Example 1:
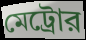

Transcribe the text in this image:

মেট্রোর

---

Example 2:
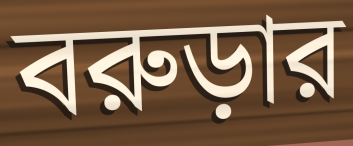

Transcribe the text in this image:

বরুড়ার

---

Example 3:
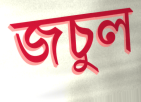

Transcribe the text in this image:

জচুল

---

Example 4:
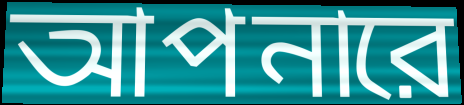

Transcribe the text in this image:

আপনারে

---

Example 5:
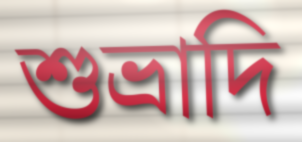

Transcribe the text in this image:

শুভ্রাদি